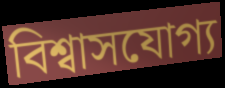
বিশ্বাসযোগ্য